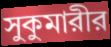
সুকুমারীর